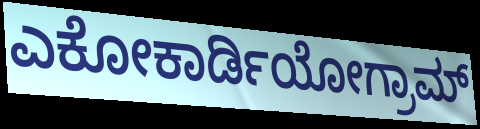
ಎಕೋಕಾರ್ಡಿಯೋಗ್ರಾಮ್